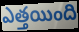
ఎత్తయింది